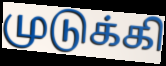
முடுக்கி